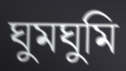
ঘুমঘুমি